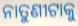
ନାତୁଣୀଟାକୁ